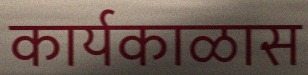
कार्यकाळास